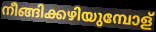
നീങ്ങിക്കഴിയുമ്പോള്